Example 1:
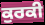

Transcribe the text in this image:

ਕੁਰਕੀ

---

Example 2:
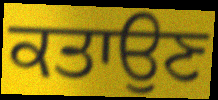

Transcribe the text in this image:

ਕਤਾਉਣ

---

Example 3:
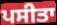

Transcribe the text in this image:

ਪਸੀਤਾ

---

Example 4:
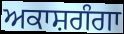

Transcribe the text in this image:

ਅਕਾਸ਼ਗੰਗਾ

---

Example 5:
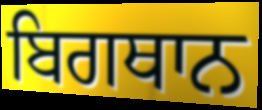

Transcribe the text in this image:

ਬਿਗਥਾਨ